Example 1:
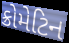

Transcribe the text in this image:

ક્રોમેટિન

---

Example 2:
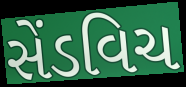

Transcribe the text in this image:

સેંડવિચ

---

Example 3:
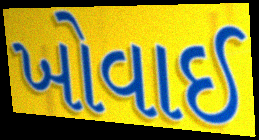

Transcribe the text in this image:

ખોવાઈ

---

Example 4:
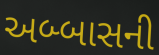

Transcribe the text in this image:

અબ્બાસની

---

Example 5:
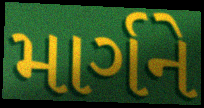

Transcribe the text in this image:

માર્ગને